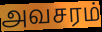
அவசரம்